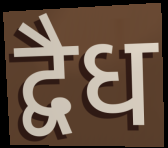
द्वैध